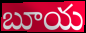
బూయ